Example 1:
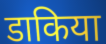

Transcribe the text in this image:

डाकिया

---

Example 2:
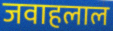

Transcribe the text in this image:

जवाहलाल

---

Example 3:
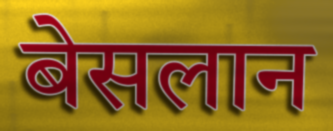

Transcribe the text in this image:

बेसलान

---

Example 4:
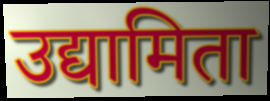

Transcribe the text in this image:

उद्यामिता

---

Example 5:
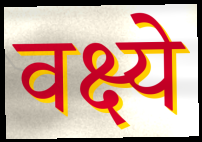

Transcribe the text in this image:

वक्ष्ये